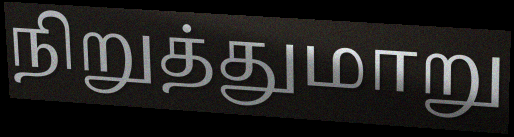
நிறுத்துமாறு